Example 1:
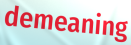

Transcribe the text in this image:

demeaning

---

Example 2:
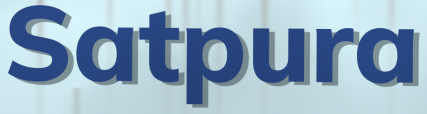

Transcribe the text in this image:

Satpura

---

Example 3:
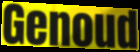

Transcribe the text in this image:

Genoud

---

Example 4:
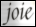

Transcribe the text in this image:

joie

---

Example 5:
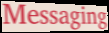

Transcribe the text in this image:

Messaging